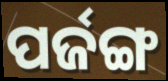
ପର୍ଜଙ୍ଗ